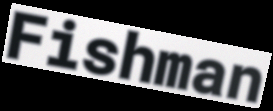
Fishman